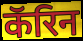
कॅरिन